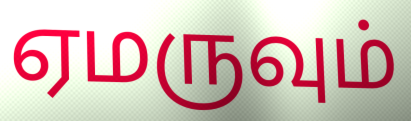
ஏமருவும்